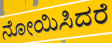
ನೋಯಿಸಿದರೆ